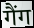
गैंग